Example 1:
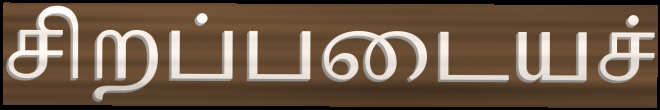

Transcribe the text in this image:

சிறப்படையச்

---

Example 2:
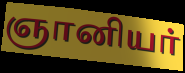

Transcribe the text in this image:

ஞானியர்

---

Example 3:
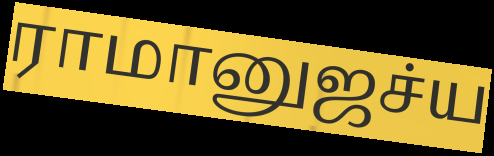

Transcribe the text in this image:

ராமானுஜச்ய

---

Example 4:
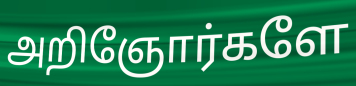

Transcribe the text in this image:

அறிஞோர்களே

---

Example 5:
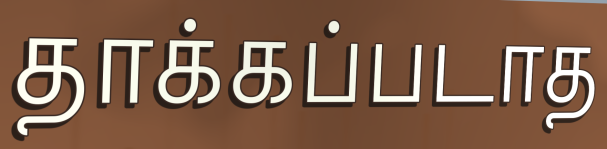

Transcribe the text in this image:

தாக்கப்படாத